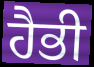
ਹੈਭੀ